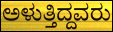
ಅಳುತ್ತಿದ್ದವರು